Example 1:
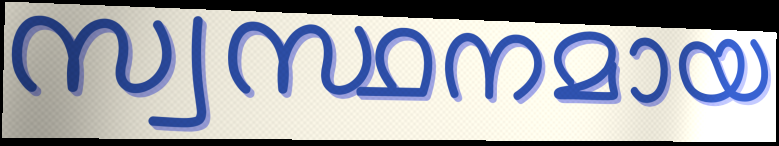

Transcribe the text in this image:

സ്വസ്ഥനമായ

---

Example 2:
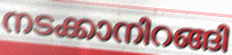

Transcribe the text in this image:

നടക്കാനിറങ്ങി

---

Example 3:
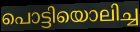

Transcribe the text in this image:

പൊട്ടിയൊലിച്ച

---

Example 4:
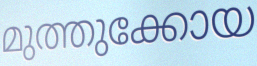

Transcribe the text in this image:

മുത്തുക്കോയ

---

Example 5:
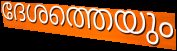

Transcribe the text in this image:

ദേശത്തെയും